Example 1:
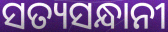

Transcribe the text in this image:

ସତ୍ୟସନ୍ଧାନୀ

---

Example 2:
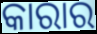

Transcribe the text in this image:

କାରାର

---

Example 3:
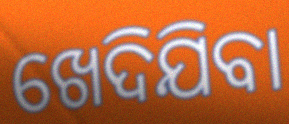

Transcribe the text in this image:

ଖେଦିଯିବା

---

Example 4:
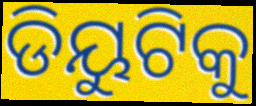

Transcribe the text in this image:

ଡିୟୁଟିକୁ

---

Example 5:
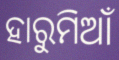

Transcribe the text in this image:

ହାରୁମିଆଁ